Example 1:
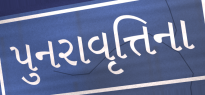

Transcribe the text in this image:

પુનરાવૃત્તિના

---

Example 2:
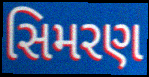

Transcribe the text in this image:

સિમરણ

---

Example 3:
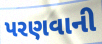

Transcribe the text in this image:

પરણવાની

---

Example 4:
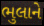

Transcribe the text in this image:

ભુલાને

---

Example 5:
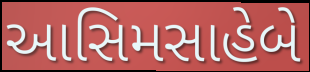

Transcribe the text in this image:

આસિમસાહેબે